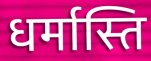
धर्मास्ति